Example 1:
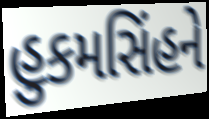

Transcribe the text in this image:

હુકમસિંહને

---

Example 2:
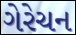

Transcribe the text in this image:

ગેરેચન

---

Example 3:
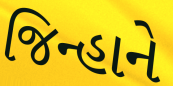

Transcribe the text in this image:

જિન્હાને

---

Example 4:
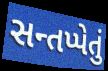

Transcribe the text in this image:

સન્તપ્પેતું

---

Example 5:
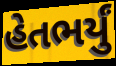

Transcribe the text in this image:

હેતભર્યું